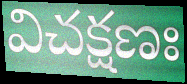
విచక్షణః